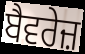
ਬੈਵਰੇਜ਼